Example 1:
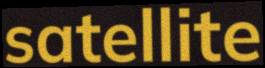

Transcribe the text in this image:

satellite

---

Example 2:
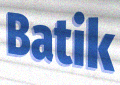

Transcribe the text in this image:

Batik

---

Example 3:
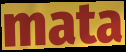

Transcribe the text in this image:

mata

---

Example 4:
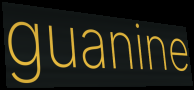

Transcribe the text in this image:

guanine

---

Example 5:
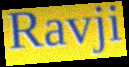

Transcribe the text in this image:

Ravji